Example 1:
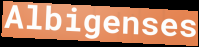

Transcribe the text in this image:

Albigenses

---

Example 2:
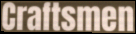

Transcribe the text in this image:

Craftsmen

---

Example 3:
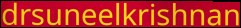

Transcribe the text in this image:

drsuneelkrishnan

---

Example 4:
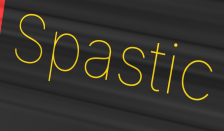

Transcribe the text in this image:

Spastic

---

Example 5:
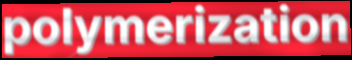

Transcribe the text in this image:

polymerization